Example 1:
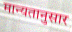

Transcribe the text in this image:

मान्यतानुसार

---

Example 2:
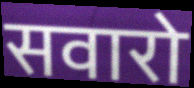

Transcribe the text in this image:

सवारो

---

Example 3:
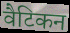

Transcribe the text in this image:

वैटिकन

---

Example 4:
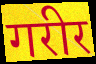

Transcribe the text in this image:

गरीर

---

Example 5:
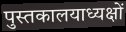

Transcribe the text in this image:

पुस्तकालयाध्यक्षों